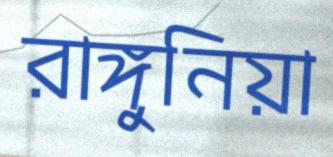
রাঙ্গুনিয়া